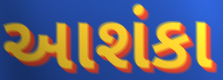
આશંકા